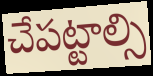
చేపట్టాల్సి